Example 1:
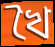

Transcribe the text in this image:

খৈ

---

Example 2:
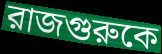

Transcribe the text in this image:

রাজগুরুকে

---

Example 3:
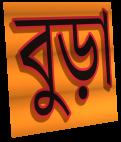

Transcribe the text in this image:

বুড়া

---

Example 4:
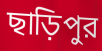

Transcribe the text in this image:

ছাড়িপুর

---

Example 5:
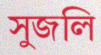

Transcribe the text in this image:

সুজলি